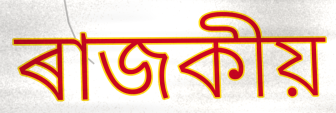
ৰাজকীয়